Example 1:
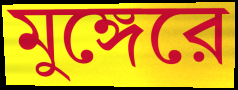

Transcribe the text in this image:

মুঙ্গেরে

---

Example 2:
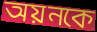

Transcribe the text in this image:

অয়নকে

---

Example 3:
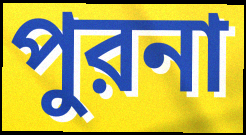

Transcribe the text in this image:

পুরনা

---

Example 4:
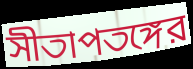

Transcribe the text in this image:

সীতাপতঙ্গের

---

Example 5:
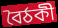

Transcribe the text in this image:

বৈঠকী